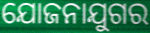
ଯୋଜନାଯୁଗର